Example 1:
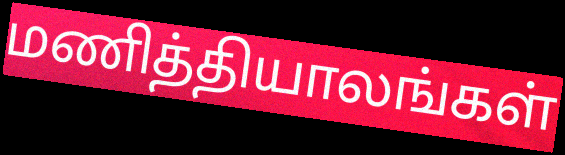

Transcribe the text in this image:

மணித்தியாலங்கள்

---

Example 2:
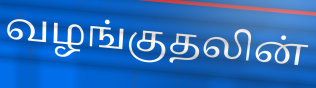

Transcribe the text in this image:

வழங்குதலின்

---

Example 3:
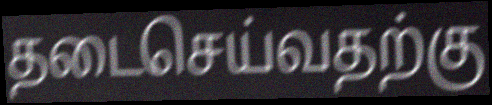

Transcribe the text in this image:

தடைசெய்வதற்கு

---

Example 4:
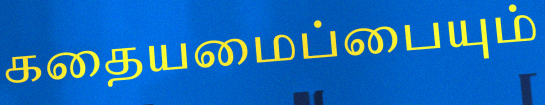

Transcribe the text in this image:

கதையமைப்பையும்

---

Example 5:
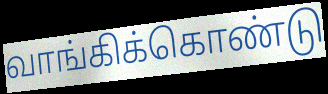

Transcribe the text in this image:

வாங்கிக்கொண்டு